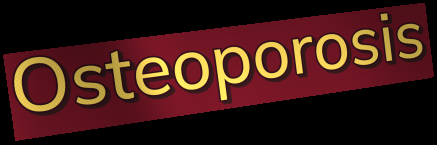
Osteoporosis